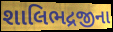
શાલિભદ્રજીના